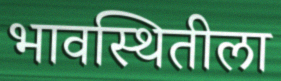
भावस्थितीला